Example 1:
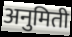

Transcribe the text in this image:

अनुमिती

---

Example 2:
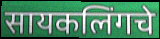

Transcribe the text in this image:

सायकलिंगचे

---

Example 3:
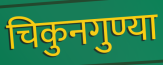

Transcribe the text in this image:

चिकुनगुण्या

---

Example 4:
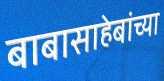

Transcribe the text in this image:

बाबासाहेबांच्‍या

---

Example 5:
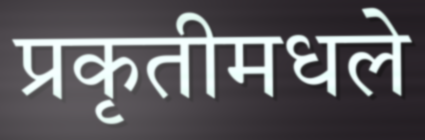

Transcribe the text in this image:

प्रकृतीमधले